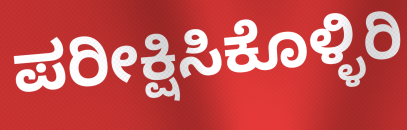
ಪರೀಕ್ಷಿಸಿಕೊಳ್ಳಿರಿ